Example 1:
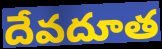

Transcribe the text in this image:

దేవదూత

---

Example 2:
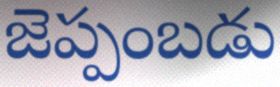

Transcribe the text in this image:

జెప్పంబడు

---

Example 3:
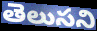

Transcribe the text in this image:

తెలుసని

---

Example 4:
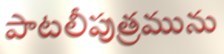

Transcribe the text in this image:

పాటలీపుత్రమును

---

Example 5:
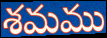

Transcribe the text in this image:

శమము